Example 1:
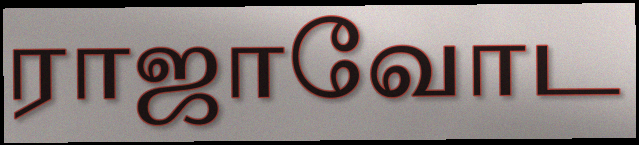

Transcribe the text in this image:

ராஜாவோட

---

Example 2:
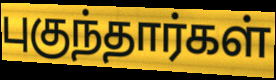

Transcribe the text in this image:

புகுந்தார்கள்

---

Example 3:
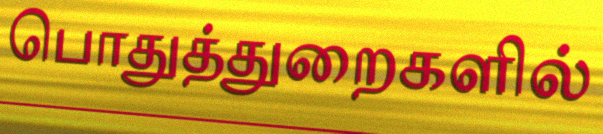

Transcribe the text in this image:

பொதுத்துறைகளில்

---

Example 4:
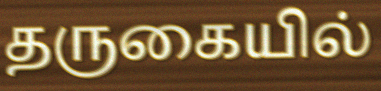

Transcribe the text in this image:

தருகையில்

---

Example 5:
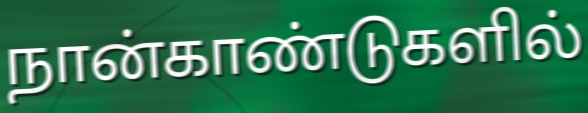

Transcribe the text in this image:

நான்காண்டுகளில்